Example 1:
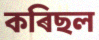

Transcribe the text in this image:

কৰিছল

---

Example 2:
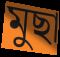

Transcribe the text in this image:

মুছা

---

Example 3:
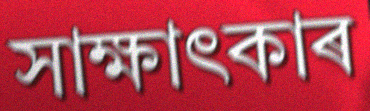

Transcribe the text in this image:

সাক্ষাৎকাৰ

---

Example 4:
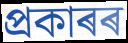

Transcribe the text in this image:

প্ৰকাৰৰ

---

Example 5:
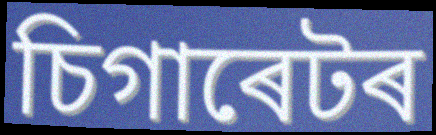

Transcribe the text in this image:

চিগাৰেটৰ